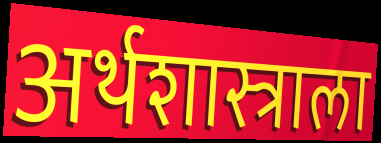
अर्थशास्त्राला